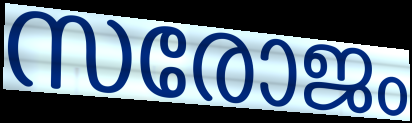
സരോജം